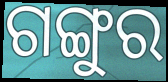
ଗଙ୍ଗୁର